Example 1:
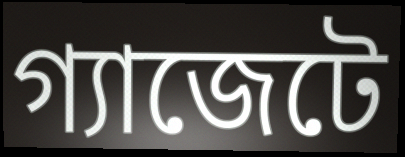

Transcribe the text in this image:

গ্যাজেটে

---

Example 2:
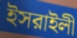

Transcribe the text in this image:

ইসরাইলী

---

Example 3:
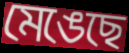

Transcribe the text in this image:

মেঙেছে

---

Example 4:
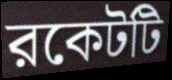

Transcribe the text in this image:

রকেটটি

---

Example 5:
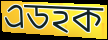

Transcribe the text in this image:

এডহক